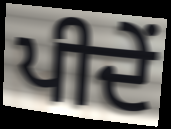
ਪੀਦੇਂ